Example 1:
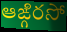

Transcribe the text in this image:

ఆఙ్గిరసో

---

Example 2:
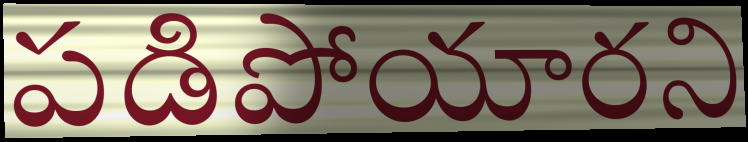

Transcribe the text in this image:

పడిపోయారని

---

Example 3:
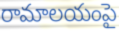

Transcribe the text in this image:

రామాలయంపై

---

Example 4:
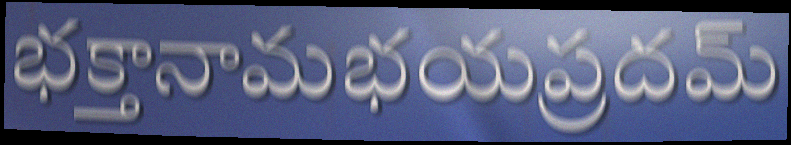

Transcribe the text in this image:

భక్తానామభయప్రదమ్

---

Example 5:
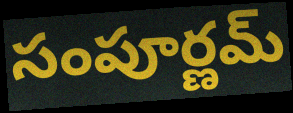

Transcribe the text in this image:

సంపూర్ణమ్